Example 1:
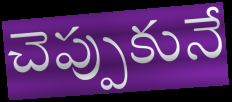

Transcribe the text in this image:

చెప్పుకునే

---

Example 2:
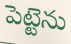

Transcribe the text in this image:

పెట్టెను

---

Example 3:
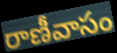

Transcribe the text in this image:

రాణీవాసం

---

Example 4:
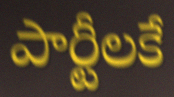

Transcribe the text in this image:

పార్టీలకే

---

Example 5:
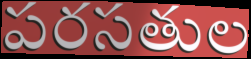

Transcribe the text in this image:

పరసతుల